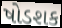
ષોડશક